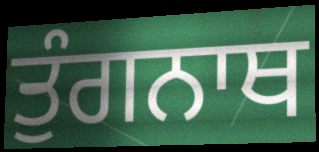
ਤੁੰਗਨਾਥ